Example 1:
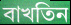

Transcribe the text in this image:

বাখতিন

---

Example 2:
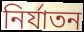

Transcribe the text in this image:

নির্যাতন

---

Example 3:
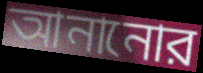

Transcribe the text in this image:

আনানোর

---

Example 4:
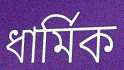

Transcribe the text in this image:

ধার্মিক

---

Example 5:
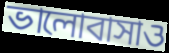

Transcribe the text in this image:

ভালোবাসাও